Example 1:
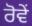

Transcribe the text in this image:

ਰੋਵੇਂ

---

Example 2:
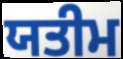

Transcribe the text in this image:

ਯਤੀਮ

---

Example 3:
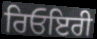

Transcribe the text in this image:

ਰਿਓਇਰੀ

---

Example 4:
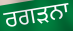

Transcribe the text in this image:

ਰਗੜਨਾ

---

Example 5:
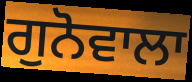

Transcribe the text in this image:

ਗੁਨੋਵਾਲਾ